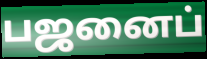
பஜனைப்